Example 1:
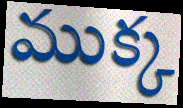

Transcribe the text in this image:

ముక్క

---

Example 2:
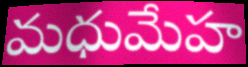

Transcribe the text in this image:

మధుమేహ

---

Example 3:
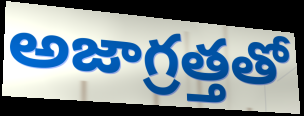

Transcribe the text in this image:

అజాగ్రత్తతో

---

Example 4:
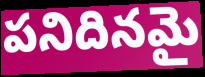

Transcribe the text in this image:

పనిదినమై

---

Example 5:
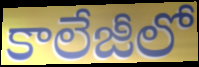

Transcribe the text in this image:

కాలేజీలో